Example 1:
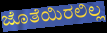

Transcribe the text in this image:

ಜೊತೆಯಿರಲಿಲ್ಲ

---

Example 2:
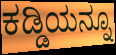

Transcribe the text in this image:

ಕಡ್ಡಿಯನ್ನೂ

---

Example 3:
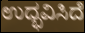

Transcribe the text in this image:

ಉದ್ಭವಿಸಿದೆ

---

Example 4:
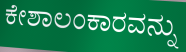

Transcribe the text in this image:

ಕೇಶಾಲಂಕಾರವನ್ನು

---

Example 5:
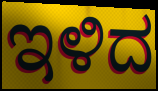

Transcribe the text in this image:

ಇಳಿದ